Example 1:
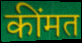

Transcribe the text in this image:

कींमत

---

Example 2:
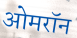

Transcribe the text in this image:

ओमरॉन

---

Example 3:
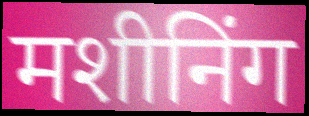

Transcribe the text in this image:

मशीनिंग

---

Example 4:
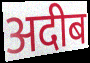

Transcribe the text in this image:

अदीब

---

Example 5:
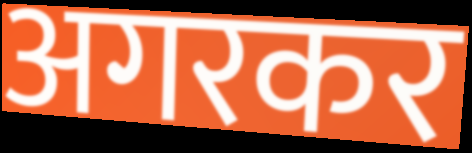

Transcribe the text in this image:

अगरकर